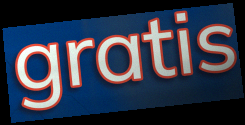
gratis